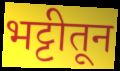
भट्टीतून